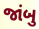
જાંબુ